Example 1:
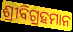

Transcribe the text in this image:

ଶ୍ରୀବିଗ୍ରହମାନ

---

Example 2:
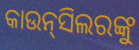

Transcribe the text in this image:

କାଉନ୍‌ସିଲରଙ୍କୁ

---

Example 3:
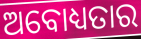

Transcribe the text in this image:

ଅବୋଧ୍ୟତାର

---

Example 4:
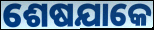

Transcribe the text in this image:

ଶେଷଯାକେ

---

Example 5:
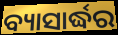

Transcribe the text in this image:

ବ୍ୟାସାର୍ଦ୍ଧର